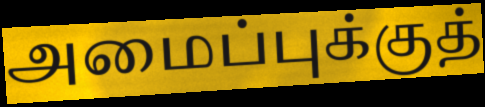
அமைப்புக்குத்